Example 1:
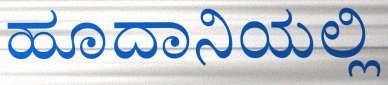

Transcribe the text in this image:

ಹೂದಾನಿಯಲ್ಲಿ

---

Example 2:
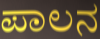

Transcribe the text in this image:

ಪಾಲನ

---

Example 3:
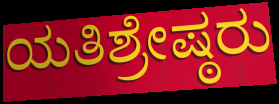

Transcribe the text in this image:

ಯತಿಶ್ರೇಷ್ಠರು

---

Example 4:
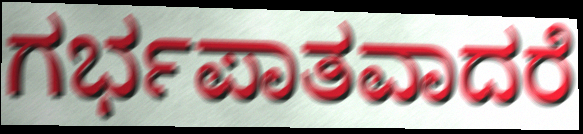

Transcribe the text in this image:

ಗರ್ಭಪಾತವಾದರೆ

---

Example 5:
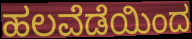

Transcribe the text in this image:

ಹಲವೆಡೆಯಿಂದ